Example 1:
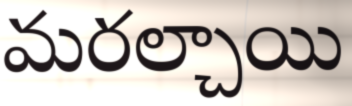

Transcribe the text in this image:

మరల్చాయి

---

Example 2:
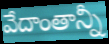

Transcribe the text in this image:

వేదాంతాన్నీ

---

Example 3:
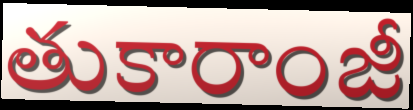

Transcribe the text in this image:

తుకారాంజీ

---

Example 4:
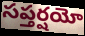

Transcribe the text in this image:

సప్తర్షయో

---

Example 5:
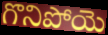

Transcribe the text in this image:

గొనిపోయె